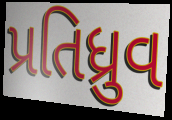
પ્રતિધ્રુવ